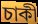
চাকী